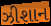
ઝીશાન